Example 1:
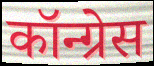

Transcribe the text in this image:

कॉन्ग्रेस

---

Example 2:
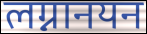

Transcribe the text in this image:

लग्नानयन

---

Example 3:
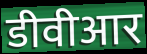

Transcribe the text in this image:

डीवीआर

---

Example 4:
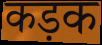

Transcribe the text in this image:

कड़क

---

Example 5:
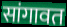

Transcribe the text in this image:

सांगावत